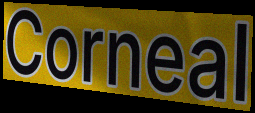
Corneal